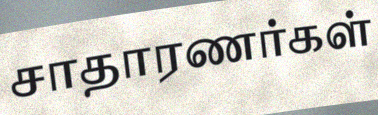
சாதாரணர்கள்